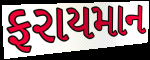
ફરાયમાન